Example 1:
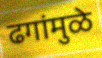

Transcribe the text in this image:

ढगांमुळे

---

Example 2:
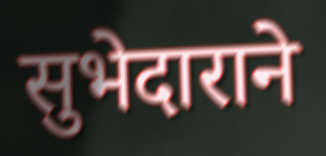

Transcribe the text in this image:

सुभेदाराने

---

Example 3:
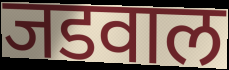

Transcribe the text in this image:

जडवाल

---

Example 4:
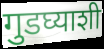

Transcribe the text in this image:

गुडघ्याशी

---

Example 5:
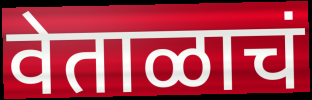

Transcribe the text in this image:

वेताळाचं